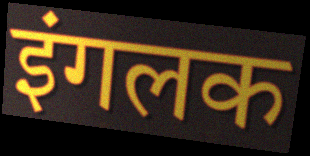
इंगलक